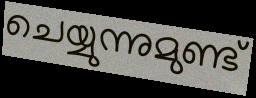
ചെയ്യുന്നുമുണ്ട്